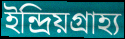
ইন্দ্রিয়গ্রাহ্য